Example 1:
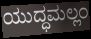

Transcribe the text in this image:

ಯುದ್ಧಮಲ್ಲಂ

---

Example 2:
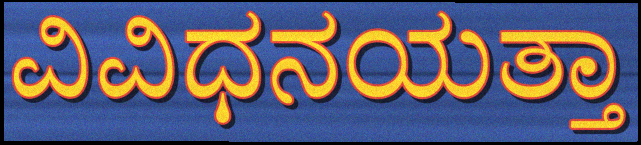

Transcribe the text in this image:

ವಿವಿಧನಯತ್ತಾ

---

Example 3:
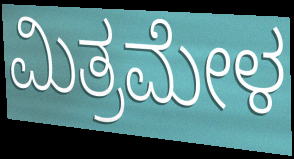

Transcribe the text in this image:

ಮಿತ್ರಮೇಳ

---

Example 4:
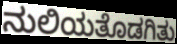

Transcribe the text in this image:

ನುಲಿಯತೊಡಗಿತು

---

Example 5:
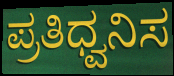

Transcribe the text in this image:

ಪ್ರತಿಧ್ವನಿಸ